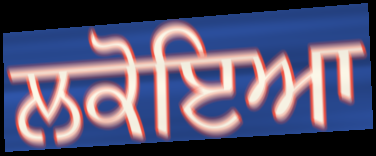
ਲਕੋਇਆ